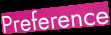
Preference